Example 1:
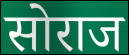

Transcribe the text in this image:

सोराज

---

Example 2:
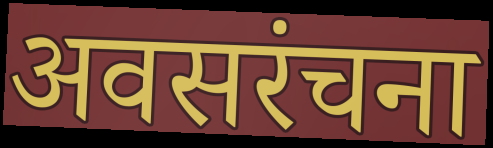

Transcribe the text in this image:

अवसरंचना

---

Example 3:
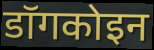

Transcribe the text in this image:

डॉगकोइन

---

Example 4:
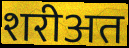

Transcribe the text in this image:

शरीअत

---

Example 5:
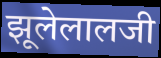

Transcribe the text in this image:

झूलेलालजी